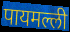
पायमल्ली